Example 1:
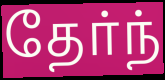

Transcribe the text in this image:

தேர்ந்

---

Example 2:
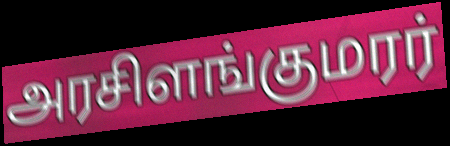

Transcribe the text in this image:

அரசிளங்குமரர்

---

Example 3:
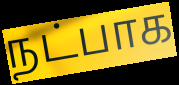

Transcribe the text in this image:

நட்பாக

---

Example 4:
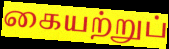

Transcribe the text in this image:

கையற்றுப்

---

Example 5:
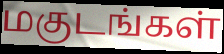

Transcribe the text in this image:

மகுடங்கள்